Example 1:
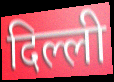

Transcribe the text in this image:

दिल्‍ली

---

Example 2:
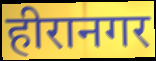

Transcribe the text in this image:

हीरानगर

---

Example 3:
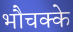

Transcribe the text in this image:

भौचक्के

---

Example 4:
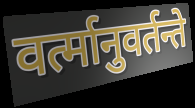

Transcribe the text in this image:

वर्त्मानुवर्तन्ते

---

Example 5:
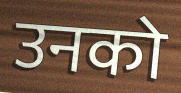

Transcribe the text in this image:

उनको